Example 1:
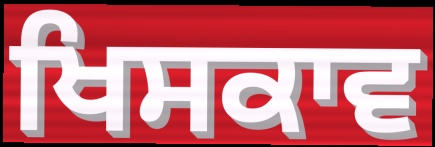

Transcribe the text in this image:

ਖਿਸਕਾਵ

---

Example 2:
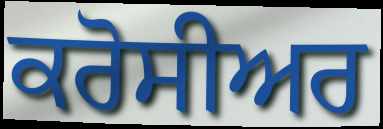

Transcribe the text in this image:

ਕਰੋਸੀਅਰ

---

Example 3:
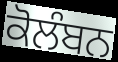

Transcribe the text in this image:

ਕੋਲੰਬਨ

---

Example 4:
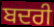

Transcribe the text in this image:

ਬਦਰੀ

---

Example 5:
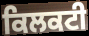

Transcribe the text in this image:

ਕਿਲਕਟੀ